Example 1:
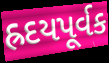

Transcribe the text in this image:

હ્રદયપૂર્વક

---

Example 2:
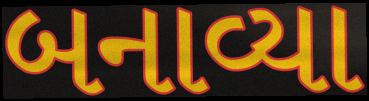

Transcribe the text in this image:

બનાવ્યા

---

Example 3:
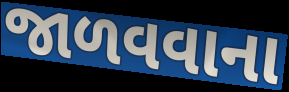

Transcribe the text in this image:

જાળવવાના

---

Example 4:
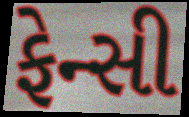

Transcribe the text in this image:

ફેન્સી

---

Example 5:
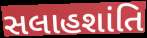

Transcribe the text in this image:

સલાહશાંતિ